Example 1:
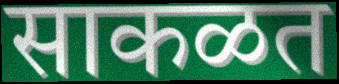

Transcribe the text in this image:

साकळत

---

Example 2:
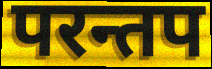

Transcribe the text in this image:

परन्तप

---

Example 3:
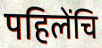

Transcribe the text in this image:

पहिलेंचि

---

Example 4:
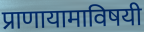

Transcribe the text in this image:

प्राणायामाविषयी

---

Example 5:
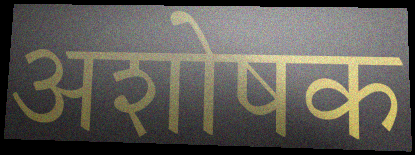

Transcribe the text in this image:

अशोषक